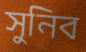
সুনিব